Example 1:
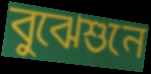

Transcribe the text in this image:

বুঝেশুনে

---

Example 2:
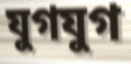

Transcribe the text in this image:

যুগযুগ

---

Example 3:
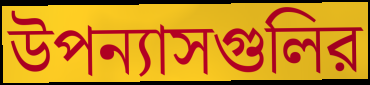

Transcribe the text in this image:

উপন্যাসগুলির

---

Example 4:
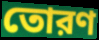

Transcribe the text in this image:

তোরণ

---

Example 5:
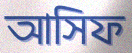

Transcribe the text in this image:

আসিফ